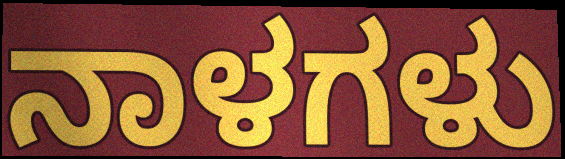
ನಾಳಗಳು